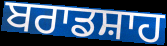
ਬਰਾਡਸ਼ਾਹ